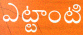
ఎట్టాంటి